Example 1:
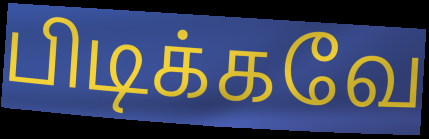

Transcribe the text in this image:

பிடிக்கவே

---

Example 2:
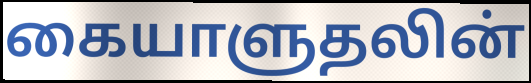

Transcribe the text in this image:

கையாளுதலின்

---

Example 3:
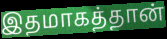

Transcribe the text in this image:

இதமாகத்தான்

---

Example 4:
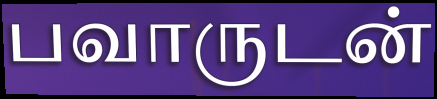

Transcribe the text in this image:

பவாருடன்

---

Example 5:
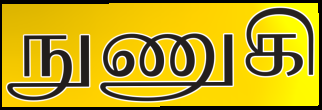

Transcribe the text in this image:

நுணுகி